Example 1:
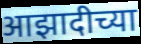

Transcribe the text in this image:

आझादीच्या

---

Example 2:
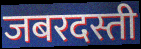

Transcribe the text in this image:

जबरदस्ती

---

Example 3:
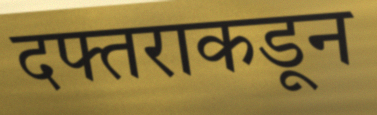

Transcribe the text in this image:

दफ्तराकडून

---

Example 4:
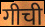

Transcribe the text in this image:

गीची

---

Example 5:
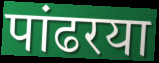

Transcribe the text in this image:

पांढरया